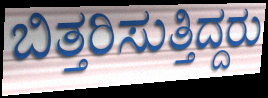
ಬಿತ್ತರಿಸುತ್ತಿದ್ದರು